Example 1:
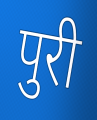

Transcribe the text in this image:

पुरी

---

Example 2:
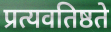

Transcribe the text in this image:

प्रत्यवतिष्ठते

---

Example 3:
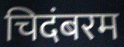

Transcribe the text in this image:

चिदंबरम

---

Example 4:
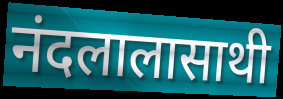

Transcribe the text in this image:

नंदलालासाथी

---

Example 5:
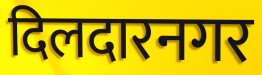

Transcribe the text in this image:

दिलदारनगर